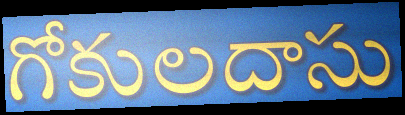
గోకులదాసు